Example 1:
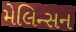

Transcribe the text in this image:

મેલિન્સન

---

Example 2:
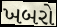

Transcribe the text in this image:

ખબરો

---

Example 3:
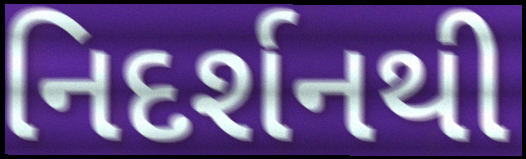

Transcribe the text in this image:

નિદર્શનથી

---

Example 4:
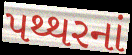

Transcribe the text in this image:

પથ્થરનાં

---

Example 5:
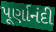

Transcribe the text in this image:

પૂર્ણાનંદી